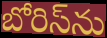
బోరిస్‌ను